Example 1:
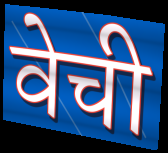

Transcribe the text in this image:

वेची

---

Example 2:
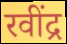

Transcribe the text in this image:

रवींद्र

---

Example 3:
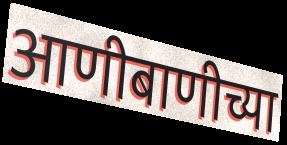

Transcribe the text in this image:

आणीबाणीच्या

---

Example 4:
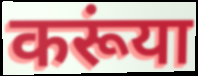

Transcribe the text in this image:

करूंया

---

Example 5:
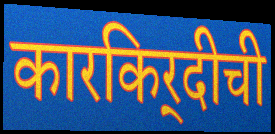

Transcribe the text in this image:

कारकिर्दीची